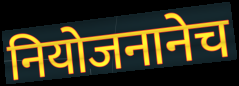
नियोजनानेच